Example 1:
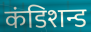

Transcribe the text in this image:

कंडिशन्ड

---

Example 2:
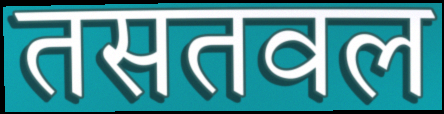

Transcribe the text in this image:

तसतवल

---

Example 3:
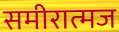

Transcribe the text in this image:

समीरात्मज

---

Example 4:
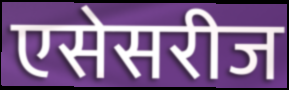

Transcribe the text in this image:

एसेसरीज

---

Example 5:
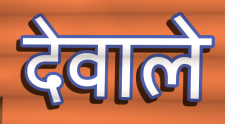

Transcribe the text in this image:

देवाले